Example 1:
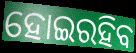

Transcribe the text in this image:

ହୋଇରହିବ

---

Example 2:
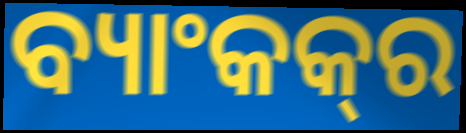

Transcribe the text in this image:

ବ୍ୟାଂକକ୍‍ର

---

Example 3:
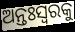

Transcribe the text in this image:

ଅନ୍ତଃସ୍ୱରକୁ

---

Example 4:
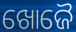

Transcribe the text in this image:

ଖୋଜୈ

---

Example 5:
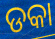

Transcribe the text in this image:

ଡକା